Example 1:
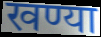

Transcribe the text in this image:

खण्या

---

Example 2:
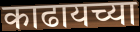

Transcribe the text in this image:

काढायच्या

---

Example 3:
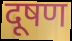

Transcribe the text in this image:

दूषण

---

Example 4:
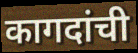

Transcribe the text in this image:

कागदांची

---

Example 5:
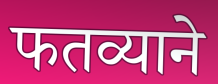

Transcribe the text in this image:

फतव्याने